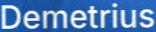
Demetrius